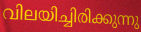
വിലയിച്ചിരിക്കുന്നു